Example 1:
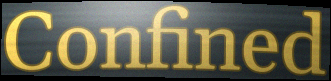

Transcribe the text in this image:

Confined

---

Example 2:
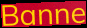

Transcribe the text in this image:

Banne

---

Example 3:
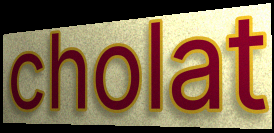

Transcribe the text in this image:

cholat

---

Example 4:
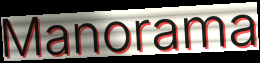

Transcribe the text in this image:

Manorama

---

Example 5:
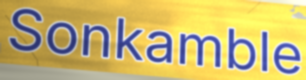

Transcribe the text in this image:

Sonkamble